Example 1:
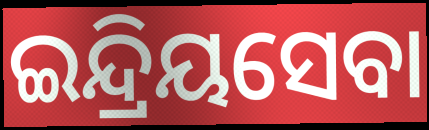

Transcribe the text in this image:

ଇନ୍ଦ୍ରିୟସେବା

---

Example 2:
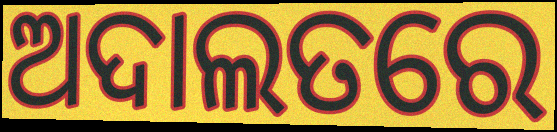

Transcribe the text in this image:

ଅଦାଲତରେ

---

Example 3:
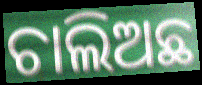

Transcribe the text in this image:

ଚାଲିଅଛ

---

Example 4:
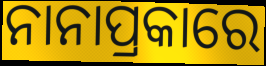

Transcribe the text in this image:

ନାନାପ୍ରକାରେ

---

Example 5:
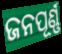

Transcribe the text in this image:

ଜନପୂର୍ଣ୍ଣ